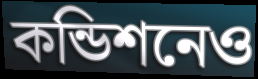
কন্ডিশনেও